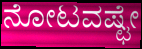
ನೋಟವಷ್ಟೇ